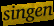
singen